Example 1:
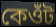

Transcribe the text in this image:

কেওঁট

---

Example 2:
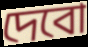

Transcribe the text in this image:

দেবো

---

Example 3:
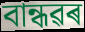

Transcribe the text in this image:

বান্ধৱৰ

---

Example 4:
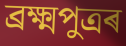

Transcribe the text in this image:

ব্ৰক্ষ্মপুত্ৰৰ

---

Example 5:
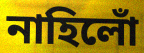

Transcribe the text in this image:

নাহিলোঁ